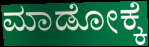
ಮಾಡೋಕ್ಕೆ